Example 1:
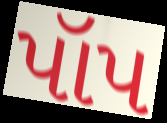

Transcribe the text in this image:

પૉપ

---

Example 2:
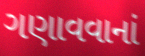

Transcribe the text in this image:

ગણાવવાનાં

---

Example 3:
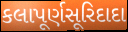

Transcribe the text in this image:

કલાપૂર્ણસૂરિદાદા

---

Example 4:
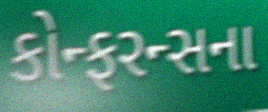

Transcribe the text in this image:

કોન્ફરન્સના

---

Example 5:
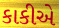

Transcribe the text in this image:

કાકીએ